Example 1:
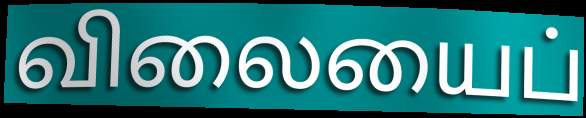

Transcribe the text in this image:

விலையைப்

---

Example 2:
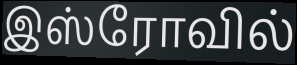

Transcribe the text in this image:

இஸ்ரோவில்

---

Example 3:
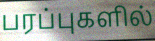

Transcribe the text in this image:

பரப்புகளில்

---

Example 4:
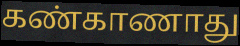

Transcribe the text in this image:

கண்காணாது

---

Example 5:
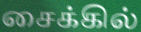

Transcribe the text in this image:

சைக்கில்